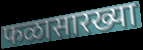
फळासारख्या